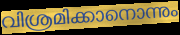
വിശ്രമിക്കാനൊന്നും